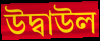
উদ্বাউল